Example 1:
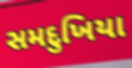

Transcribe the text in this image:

સમદુખિયા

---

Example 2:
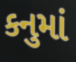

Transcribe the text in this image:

કનુમાં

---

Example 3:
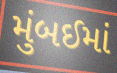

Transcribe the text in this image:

મુંબઈમાં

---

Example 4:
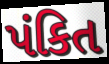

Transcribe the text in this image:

પંકિત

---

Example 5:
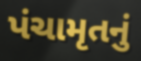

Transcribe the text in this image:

પંચામૃતનું